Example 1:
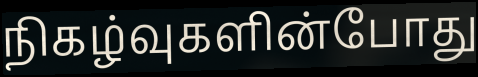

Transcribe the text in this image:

நிகழ்வுகளின்போது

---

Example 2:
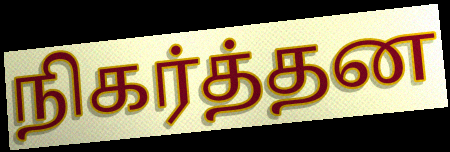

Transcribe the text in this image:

நிகர்த்தன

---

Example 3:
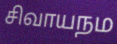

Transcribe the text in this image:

சிவாயநம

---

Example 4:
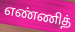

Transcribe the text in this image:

எண்ணித்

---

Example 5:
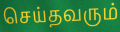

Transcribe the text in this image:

செய்தவரும்